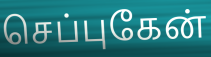
செப்புகேன்